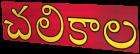
చలికాల